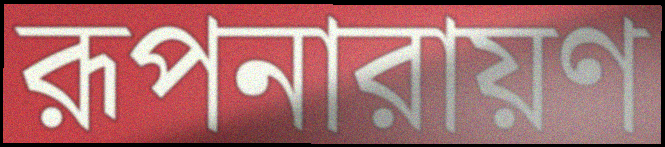
রূপনারায়ণ